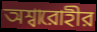
অশ্বারোহীর